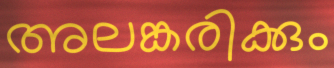
അലങ്കരിക്കും